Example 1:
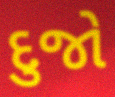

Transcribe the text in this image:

દુજો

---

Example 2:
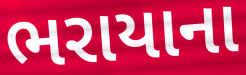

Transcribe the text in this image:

ભરાયાના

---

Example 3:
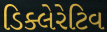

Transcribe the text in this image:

ડિક્લેરેટિવ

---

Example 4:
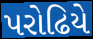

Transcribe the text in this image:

પરોઢિયે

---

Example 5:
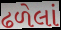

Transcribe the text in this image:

ઢળેલાં